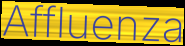
Affluenza